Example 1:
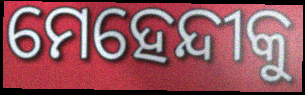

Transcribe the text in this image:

ମେହେନ୍ଦୀକୁ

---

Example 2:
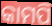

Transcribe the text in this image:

କାମପି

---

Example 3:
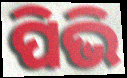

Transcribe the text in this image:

ପିଭି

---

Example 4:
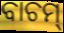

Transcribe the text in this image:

ବାଚମ୍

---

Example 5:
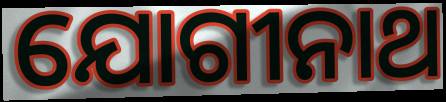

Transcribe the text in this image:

ଯୋଗୀନାଥ